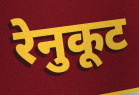
रेनुकूट